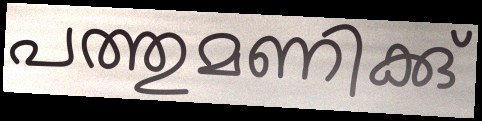
പത്തുമണിക്കു്